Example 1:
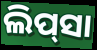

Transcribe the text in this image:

ଲିପ୍‌ସା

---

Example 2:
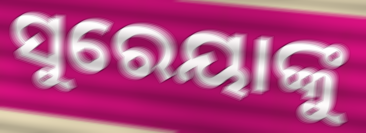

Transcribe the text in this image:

ସୁରେୟାଙ୍କୁ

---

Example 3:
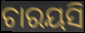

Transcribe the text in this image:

ଚାରୟସି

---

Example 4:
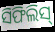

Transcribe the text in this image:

ସିଫିଲିସ୍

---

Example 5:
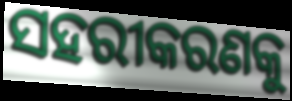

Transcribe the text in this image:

ସହରୀକରଣକୁ